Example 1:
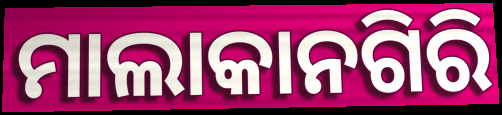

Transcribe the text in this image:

ମାଲାକାନଗିରି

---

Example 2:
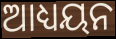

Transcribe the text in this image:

ଆଧ୍ୟୟନ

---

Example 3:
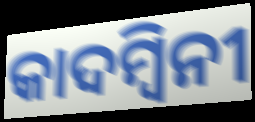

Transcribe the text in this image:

କାଦମ୍ୱିନୀ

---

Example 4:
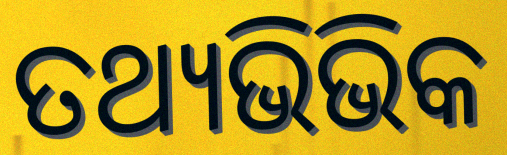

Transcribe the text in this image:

ତଥ୍ୟଭିଭିକ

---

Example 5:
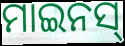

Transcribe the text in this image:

ମାଇନସ୍